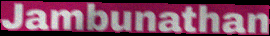
Jambunathan